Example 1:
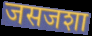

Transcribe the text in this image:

जसजशा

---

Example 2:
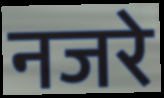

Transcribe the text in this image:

नजरे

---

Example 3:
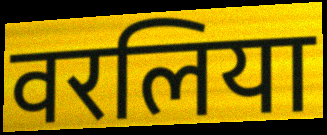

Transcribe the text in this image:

वरलिया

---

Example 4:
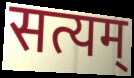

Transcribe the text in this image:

सत्यम्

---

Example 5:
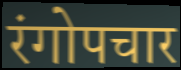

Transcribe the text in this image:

रंगोपचार